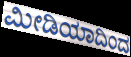
ಮೀಡಿಯಾದಿಂದ